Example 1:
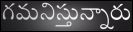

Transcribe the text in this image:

గమనిస్తున్నారు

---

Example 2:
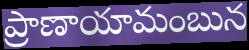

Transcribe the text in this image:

ప్రాణాయామంబున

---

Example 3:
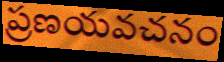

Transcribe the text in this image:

ప్రణయవచనం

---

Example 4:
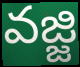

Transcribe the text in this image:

వజ్జి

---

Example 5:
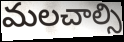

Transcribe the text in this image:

మలచాల్సి